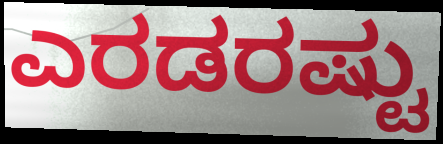
ಎರಡರಷ್ಟು